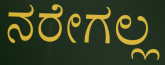
ನರೇಗಲ್ಲ